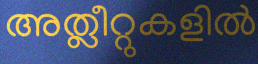
അത്ലീറ്റുകളിൽ